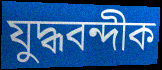
যুদ্ধবন্দীক